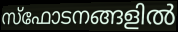
സ്ഫോടനങ്ങളിൽ